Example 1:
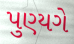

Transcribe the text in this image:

પુણ્યગે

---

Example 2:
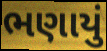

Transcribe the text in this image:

ભણાયું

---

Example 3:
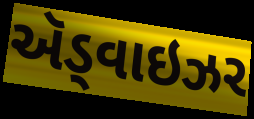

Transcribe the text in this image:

ઍડ્વાઇઝર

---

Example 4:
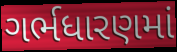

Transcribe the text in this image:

ગર્ભધારણમાં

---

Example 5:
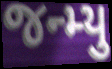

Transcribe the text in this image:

જન્મ્યુ